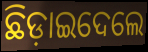
ଛିଡ଼ାଇଦେଲେ